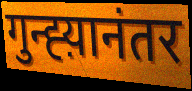
गुन्ह्य़ानंतर